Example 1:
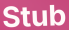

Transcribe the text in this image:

Stub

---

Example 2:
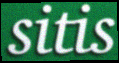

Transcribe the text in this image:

sitis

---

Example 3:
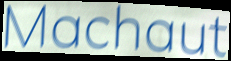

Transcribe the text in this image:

Machaut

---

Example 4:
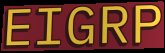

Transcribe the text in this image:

EIGRP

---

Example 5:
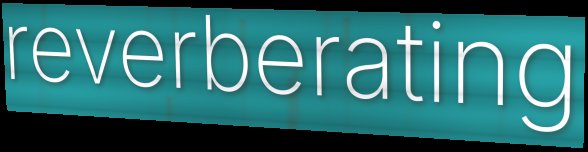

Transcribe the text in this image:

reverberating